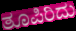
ತೂಪಿರಿದು